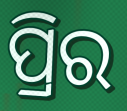
ପ୍ରିର